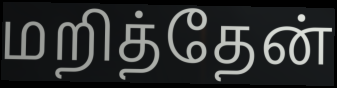
மறித்தேன்